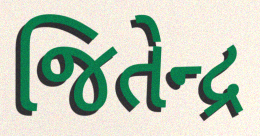
જિતેન્દ્ર